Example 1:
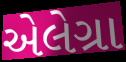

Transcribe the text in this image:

એલેગ્રા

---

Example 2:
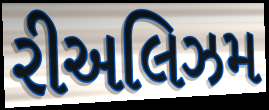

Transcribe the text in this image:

રીઅલિઝમ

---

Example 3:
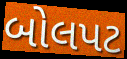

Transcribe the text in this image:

બોલપટ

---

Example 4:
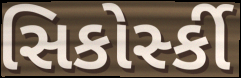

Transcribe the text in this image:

સિકોર્સ્કી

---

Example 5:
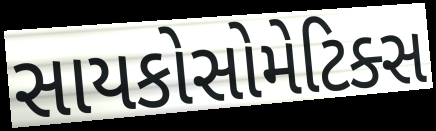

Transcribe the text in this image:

સાયકોસોમેટિક્સ